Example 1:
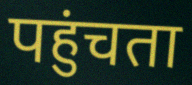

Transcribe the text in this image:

पहुंचता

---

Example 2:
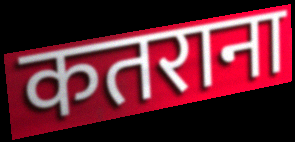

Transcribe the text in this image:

कतराना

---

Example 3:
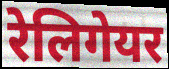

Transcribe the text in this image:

रेलिगेयर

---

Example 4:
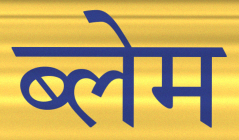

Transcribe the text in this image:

ब्लेम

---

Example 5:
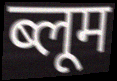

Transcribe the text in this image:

ब्लूम